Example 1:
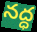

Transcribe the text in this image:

నద్ధ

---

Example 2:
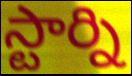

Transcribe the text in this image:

స్టార్ని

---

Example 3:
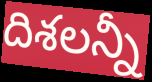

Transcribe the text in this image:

దిశలన్నీ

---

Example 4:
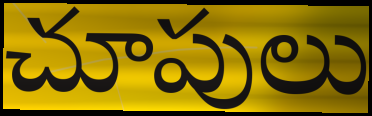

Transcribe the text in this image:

చూపులు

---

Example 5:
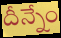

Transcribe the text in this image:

దీన్నేం